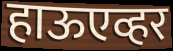
हाऊएव्हर